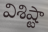
విశిష్టా